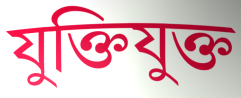
যুক্তিযুক্ত